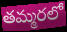
తమ్మరలో